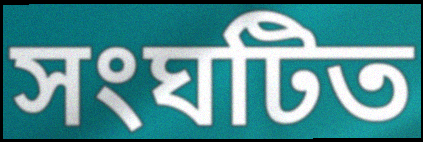
সংঘটিত